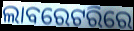
ଲାବରେଟରିରେ